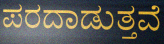
ಪರದಾಡುತ್ತವೆ